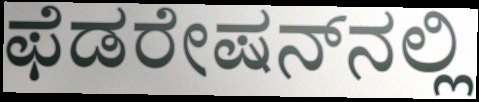
ಫೆಡರೇಷನ್‌ನಲ್ಲಿ